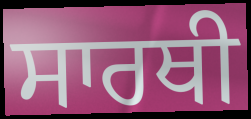
ਸਾਰਥੀ